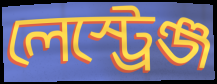
লেস্ট্রেঞ্জ